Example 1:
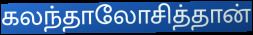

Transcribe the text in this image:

கலந்தாலோசித்தான்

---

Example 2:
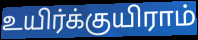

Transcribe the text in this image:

உயிர்க்குயிராம்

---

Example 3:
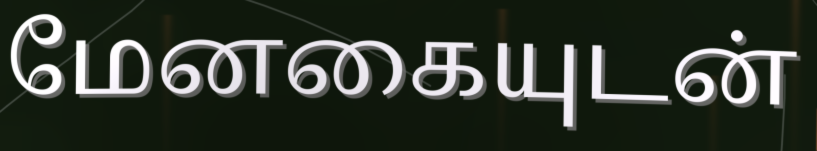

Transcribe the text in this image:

மேனகையுடன்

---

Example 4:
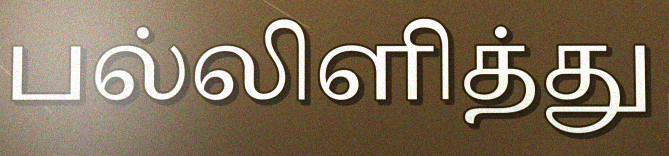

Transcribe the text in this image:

பல்லிளித்து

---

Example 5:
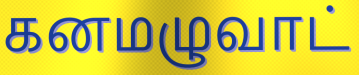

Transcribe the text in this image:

கனமழுவாட்